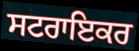
ਸਟਰਾਇਕਰ